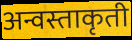
अन्वस्ताकृती